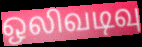
ஒலிவடிவு